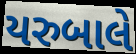
યરુબાલે